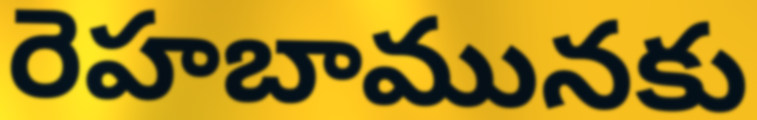
రెహబామునకు